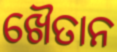
ଖୈତାନ